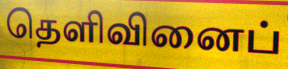
தெளிவினைப்